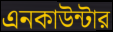
এনকাউন্টার